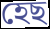
হেছ